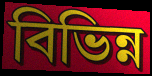
বিভিন্ন